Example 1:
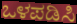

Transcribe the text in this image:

ಒಳಪಡಿಸಿ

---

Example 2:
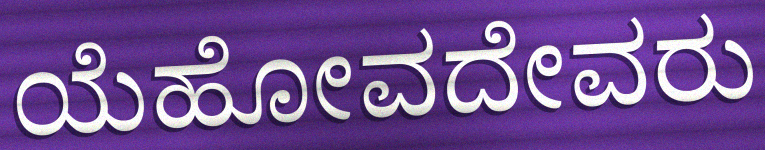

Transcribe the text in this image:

ಯೆಹೋವದೇವರು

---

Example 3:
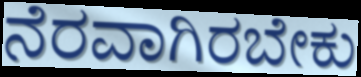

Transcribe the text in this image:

ನೆರವಾಗಿರಬೇಕು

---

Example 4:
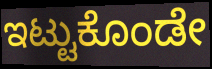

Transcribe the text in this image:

ಇಟ್ಟುಕೊಂಡೇ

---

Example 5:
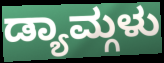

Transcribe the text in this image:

ಡ್ಯಾಮ್ಗಳು